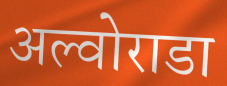
अल्वोराडा